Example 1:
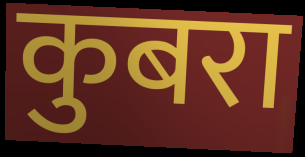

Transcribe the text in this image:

कुबरा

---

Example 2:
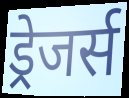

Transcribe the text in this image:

ड्रेजर्स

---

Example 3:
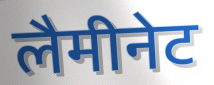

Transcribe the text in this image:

लैमीनेट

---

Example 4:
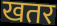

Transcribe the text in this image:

खतर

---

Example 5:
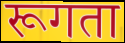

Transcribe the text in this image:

रूगता